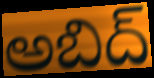
అబిద్